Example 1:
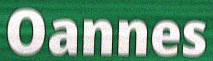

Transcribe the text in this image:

Oannes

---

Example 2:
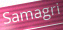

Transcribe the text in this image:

Samagri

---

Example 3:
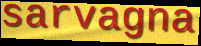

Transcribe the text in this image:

sarvagna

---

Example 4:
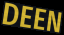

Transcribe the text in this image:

DEEN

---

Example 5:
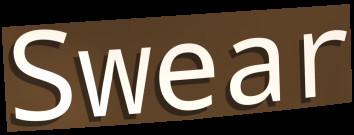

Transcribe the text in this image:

Swear